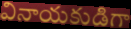
వినాయకుడిగా